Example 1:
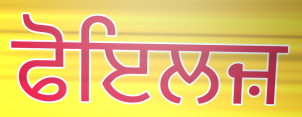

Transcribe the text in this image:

ਫੋਇਲਜ਼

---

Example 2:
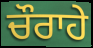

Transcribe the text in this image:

ਚੌਰਾਹੇ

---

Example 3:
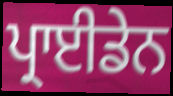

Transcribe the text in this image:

ਪ੍ਰਾਈਡੇਨ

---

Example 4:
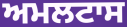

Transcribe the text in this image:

ਅਮਲਟਾਸ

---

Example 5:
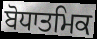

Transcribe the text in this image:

ਬੋਧਾਤਮਿਕ